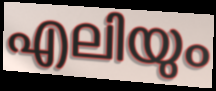
എലിയും